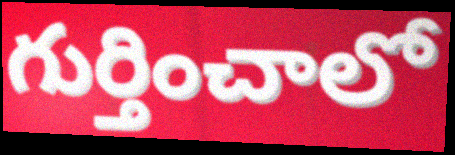
గుర్తించాలో